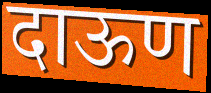
दाऊण